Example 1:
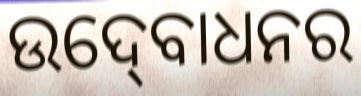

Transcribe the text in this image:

ଉଦ୍‍ବୋଧନର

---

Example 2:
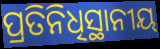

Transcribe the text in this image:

ପ୍ରତିନିଧିସ୍ଥାନୀୟ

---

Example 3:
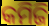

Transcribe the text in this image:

କମିଜି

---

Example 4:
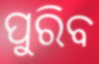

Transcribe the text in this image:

ପୁରିବ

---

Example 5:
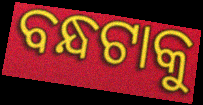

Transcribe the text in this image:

ବନ୍ଧଟାକୁ